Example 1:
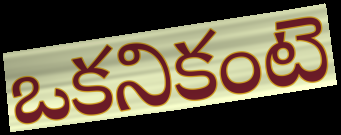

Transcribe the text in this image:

ఒకనికంటె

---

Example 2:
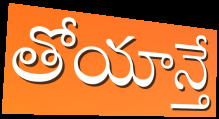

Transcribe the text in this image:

తోయాన్తే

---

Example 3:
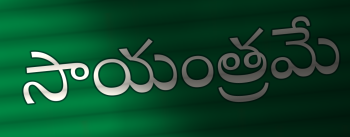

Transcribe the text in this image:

సాయంత్రమే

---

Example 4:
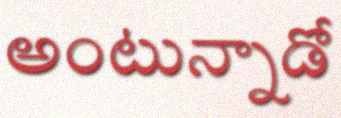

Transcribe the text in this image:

అంటున్నాడో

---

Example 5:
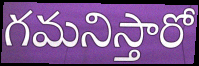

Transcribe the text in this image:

గమనిస్తారో